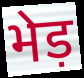
भेड़